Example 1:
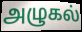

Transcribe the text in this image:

அழுகல்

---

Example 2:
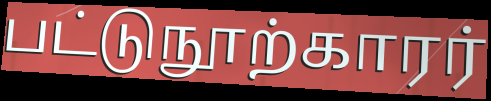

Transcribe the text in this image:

பட்டுநூற்காரர்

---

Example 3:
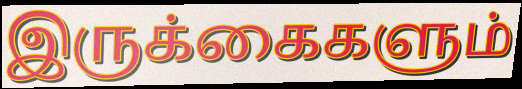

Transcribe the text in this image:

இருக்கைகளும்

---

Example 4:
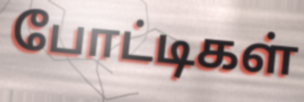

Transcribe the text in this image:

போட்டிகள்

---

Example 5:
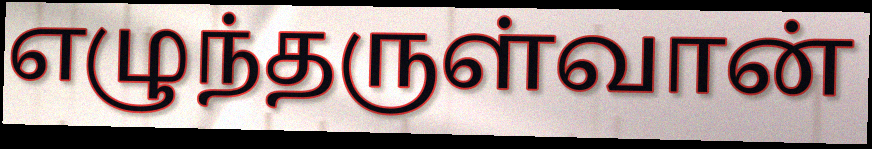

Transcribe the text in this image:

எழுந்தருள்வான்